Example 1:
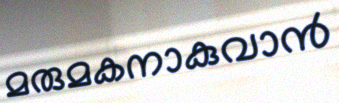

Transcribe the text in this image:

മരുമകനാകുവാൻ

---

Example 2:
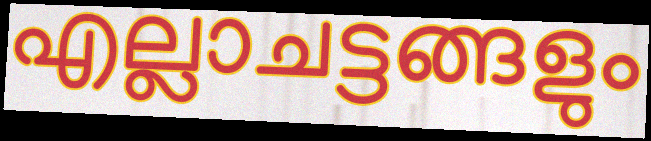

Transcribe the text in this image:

എല്ലാചട്ടങ്ങളും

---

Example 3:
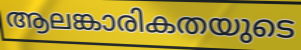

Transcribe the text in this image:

ആലങ്കാരികതയുടെ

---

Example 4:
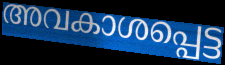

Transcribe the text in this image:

അവകാശപ്പെട്ട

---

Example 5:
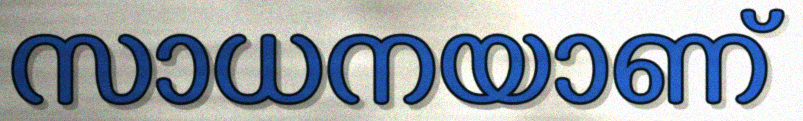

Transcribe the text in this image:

സാധനയാണ്